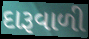
દારૂવાળી